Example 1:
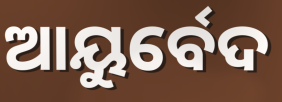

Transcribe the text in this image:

ଆୟୁର୍ବେଦ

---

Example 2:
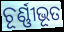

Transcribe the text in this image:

ଚୂର୍ଣ୍ଣୀଭୂତ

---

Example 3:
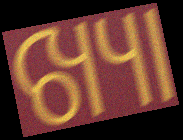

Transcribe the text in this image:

ଖ୍ୟା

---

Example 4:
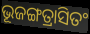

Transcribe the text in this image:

ଭୂଜଙ୍ଗତ୍ରାସିତଂ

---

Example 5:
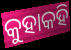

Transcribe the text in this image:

କୁହାକହି